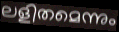
ലളിതമെന്നും